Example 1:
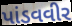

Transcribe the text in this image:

પાંડવવીર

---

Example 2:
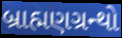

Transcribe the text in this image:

બ્રાહ્મણગ્રન્થો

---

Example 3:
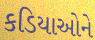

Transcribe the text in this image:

કડિયાઓને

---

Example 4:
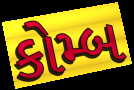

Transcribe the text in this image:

કોમ્બ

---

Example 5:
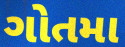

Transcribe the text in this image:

ગોતમા